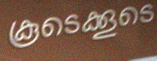
കൂടെക്കൂടെ